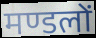
मण्डलों